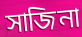
সাজিনা